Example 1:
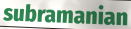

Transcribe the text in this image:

subramanian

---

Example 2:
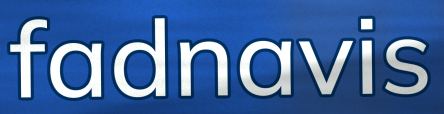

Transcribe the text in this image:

fadnavis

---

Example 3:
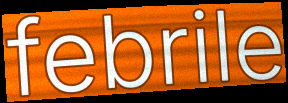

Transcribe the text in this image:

febrile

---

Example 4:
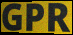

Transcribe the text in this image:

GPR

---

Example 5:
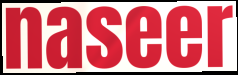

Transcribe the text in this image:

naseer